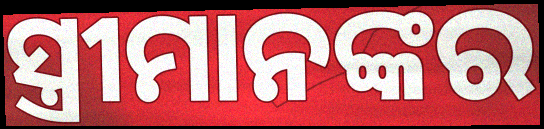
ସ୍ତ୍ରୀମାନଙ୍କର